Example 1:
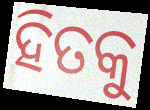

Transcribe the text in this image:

ହିତକୁ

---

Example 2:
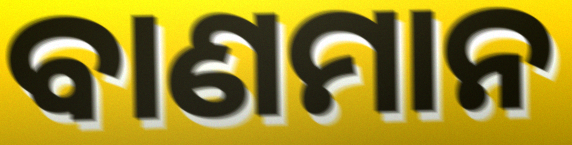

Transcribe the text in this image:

ବାଣମାନ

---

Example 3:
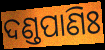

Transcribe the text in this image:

ଦଣ୍ଡପାଣିଃ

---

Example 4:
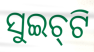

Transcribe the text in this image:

ସୁଇଚ୍‌ଟି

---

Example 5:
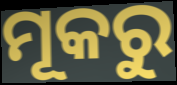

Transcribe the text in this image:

ମୂକରୁ